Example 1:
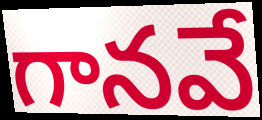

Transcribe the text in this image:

గానవే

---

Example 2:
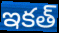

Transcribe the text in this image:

ఇకత్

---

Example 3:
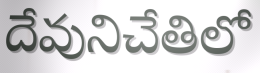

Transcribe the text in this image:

దేవునిచేతిలో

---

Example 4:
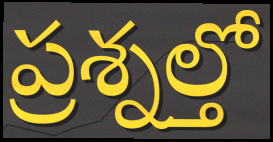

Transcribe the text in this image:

ప్రశ్నల్తో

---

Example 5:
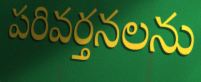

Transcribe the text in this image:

పరివర్తనలను